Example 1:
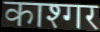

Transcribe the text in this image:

काश्गर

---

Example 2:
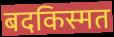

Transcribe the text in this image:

बदकिस्मत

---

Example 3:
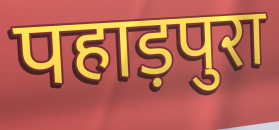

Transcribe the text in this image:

पहाड़पुरा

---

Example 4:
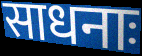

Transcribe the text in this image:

साधनाः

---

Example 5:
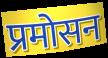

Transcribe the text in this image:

प्रमोसन